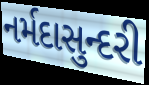
નર્મદાસુન્દરી